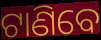
ଟାଣିବେ